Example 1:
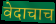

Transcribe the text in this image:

वेदाचाच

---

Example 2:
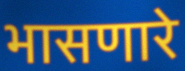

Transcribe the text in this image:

भासणारे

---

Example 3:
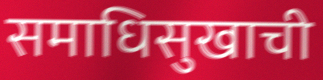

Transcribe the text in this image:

समाधिसुखाची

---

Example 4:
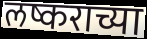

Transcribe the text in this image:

लष्कराच्या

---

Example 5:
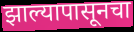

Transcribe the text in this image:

झाल्यापासूनचा